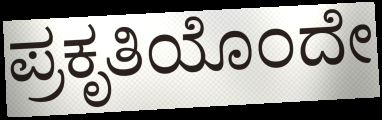
ಪ್ರಕೃತಿಯೊಂದೇ